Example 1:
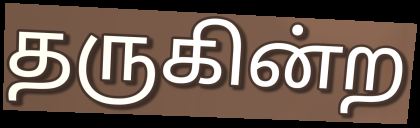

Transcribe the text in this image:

தருகின்ற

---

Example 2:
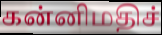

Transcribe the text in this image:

கன்னிமதிச்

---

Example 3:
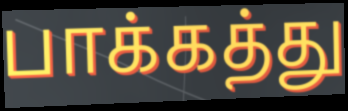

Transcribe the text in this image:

பாக்கத்து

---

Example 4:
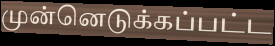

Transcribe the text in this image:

முன்னெடுக்கப்பட்ட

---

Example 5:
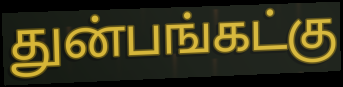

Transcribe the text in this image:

துன்பங்கட்கு